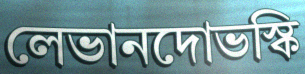
লেভানদোভস্কি